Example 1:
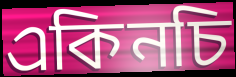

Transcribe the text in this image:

একিনচি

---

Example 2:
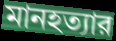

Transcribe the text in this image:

মানহত্যার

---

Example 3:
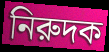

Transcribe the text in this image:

নিরুদক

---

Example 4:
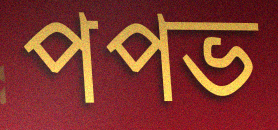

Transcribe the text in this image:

পপভ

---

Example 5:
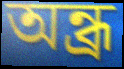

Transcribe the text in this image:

অন্ধ্র